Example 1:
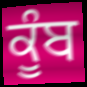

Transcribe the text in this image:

ਕੂੰਬ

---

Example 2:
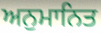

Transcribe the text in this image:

ਅਨੁਮਾਨਿਤ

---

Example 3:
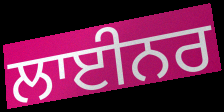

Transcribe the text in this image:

ਲਾਈਨਰ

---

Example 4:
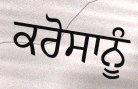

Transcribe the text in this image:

ਕਰੋਸਾਨੂੰ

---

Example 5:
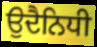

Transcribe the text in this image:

ਉਦੈਨਿਧੀ